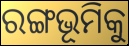
ରଙ୍ଗଭୂମିକୁ